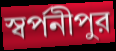
স্বর্পনীপুর